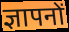
ज्ञापनों